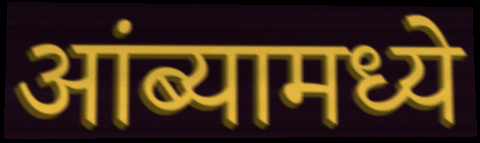
आंब्यामध्ये